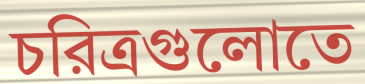
চরিত্রগুলোতে